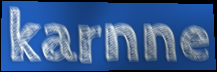
karnne